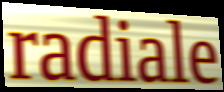
radiale